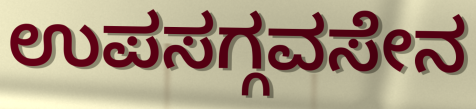
ಉಪಸಗ್ಗವಸೇನ